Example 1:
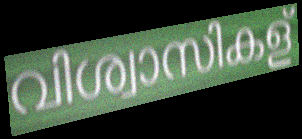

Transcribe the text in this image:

വിശ്വാസികള്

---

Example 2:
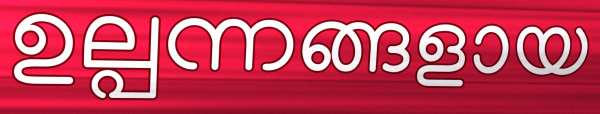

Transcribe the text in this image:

ഉല്പന്നങ്ങളായ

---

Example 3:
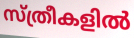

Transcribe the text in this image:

സ്ത്രീകളിൽ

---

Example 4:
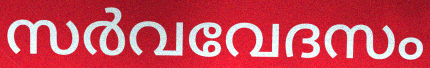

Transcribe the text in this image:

സർവവേദസം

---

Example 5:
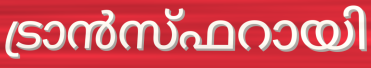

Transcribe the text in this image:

ട്രാൻസ്ഫറായി